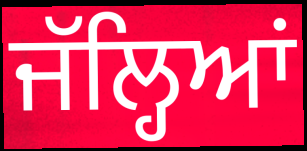
ਜੱਲ੍ਹਿਆਂ